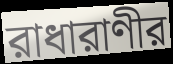
রাধারাণীর